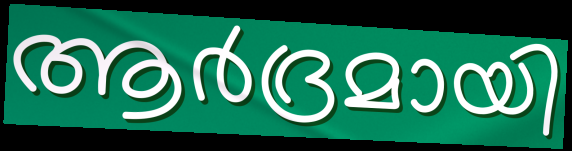
ആർദ്രമായി